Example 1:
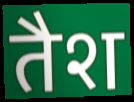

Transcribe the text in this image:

तैश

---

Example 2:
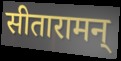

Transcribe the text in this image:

सीतारामन्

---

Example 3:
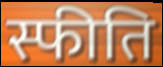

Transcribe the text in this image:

स्फीति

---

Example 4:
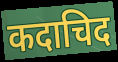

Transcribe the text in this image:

कदाचिद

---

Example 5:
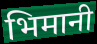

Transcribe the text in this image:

भिमानी